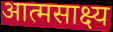
आत्मसाक्ष्य